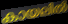
കായലിൽ